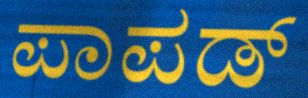
ಪಾಪಡ್